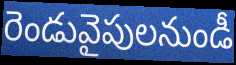
రెండువైపులనుండీ